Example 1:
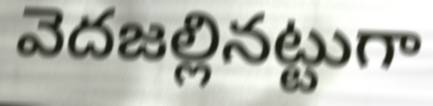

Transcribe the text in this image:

వెదజల్లినట్టుగా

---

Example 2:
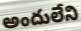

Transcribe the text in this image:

అందులేని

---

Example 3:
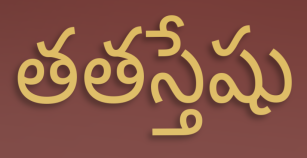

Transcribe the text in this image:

తతస్తేషు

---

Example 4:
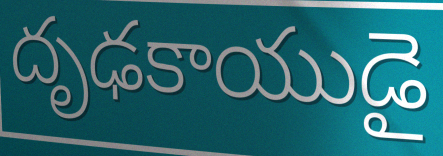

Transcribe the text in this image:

దృఢకాయుడై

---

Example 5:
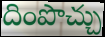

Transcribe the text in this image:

దింపొచ్చు